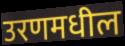
उरणमधील